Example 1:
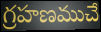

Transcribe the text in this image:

గ్రహణముచే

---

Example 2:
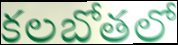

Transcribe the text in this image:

కలబోతలో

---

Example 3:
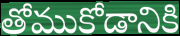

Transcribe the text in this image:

తోముకోడానికి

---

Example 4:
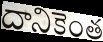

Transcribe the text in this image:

దానికెంత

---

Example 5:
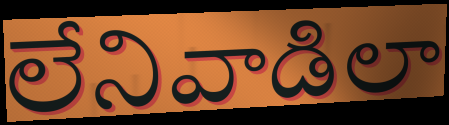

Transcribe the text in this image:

లేనివాడిలా